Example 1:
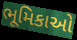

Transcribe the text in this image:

ભૂમિકાઓ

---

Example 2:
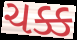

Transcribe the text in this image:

ચક્ક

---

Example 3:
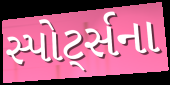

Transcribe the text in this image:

સ્પોર્ટ્સના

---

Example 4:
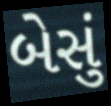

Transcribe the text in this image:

બેસું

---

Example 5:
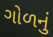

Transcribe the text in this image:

ગોળનું